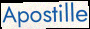
Apostille